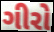
ગીરો